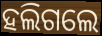
ହଲିଗଲେ